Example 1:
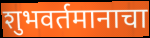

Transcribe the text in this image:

शुभवर्तमानाचा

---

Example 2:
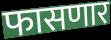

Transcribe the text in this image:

फासणार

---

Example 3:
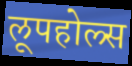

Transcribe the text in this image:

लूपहोल्स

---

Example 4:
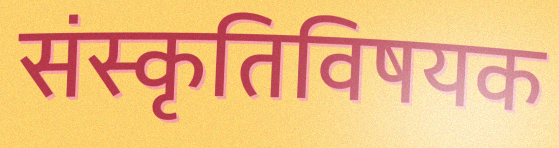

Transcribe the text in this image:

संस्कृतिविषयक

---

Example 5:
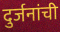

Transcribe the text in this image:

दुर्जनांची